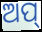
ଅପ୍